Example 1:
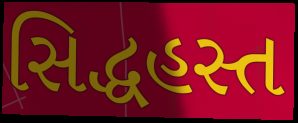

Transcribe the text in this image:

સિદ્ધહસ્ત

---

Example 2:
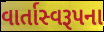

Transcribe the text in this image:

વાર્તાસ્વરૂપના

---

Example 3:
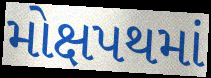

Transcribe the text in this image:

મોક્ષપથમાં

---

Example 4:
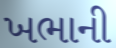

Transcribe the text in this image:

ખભાની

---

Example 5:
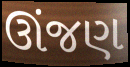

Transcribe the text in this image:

ઊંજણ